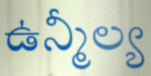
ఉన్మీల్య